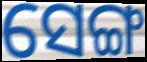
ସେଙ୍ଗ